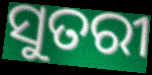
ସୁତରୀ